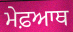
ਮੇਫ਼ਆਥ